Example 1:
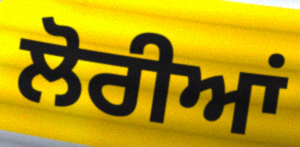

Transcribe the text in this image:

ਲੋਰੀਆਂ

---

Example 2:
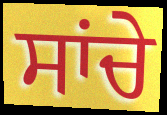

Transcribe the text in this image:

ਸਾਂਚੇ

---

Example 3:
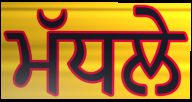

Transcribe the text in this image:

ਮੱਧਲੇ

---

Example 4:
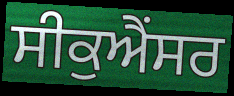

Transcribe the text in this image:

ਸੀਕੁਐਂਸਰ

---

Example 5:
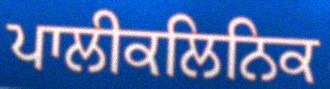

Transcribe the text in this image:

ਪਾਲੀਕਲਿਨਿਕ